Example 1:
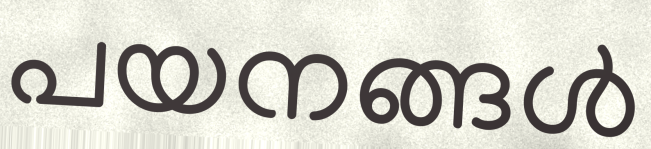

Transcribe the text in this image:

പയനങ്ങൾ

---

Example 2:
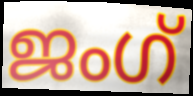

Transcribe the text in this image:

ജംഗ്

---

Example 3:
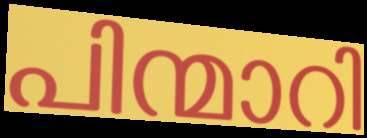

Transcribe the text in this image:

പിന്മാറി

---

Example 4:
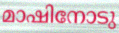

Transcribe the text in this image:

മാഷിനോടു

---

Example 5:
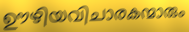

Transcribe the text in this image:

ഊഴിയവിചാരകന്മാരും